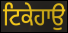
ਟਿਕੇਹਾਉ